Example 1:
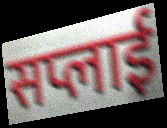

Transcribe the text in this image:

सप्‍लाई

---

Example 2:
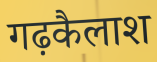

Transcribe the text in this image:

गढ़कैलाश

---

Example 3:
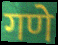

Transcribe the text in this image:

गणे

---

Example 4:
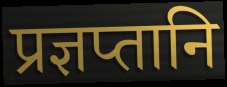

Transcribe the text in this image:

प्रज्ञप्तानि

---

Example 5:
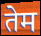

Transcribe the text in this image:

तेम